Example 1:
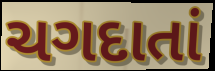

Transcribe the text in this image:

ચગદાતાં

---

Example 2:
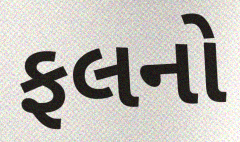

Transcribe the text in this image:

ફલનો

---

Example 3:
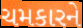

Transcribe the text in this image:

ચમકારને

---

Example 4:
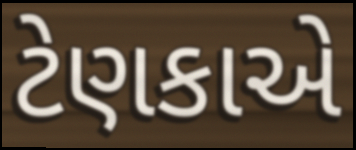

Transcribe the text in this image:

ટેણકાએ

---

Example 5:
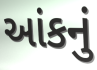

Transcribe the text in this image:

આંકનું